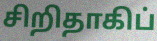
சிறிதாகிப்